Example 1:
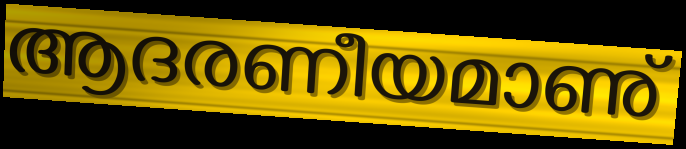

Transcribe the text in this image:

ആദരണീയമാണു്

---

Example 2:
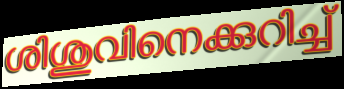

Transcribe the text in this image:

ശിശുവിനെക്കുറിച്ച്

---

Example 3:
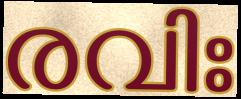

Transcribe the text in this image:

രവിഃ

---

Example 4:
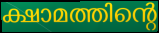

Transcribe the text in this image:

ക്ഷാമത്തിന്റെ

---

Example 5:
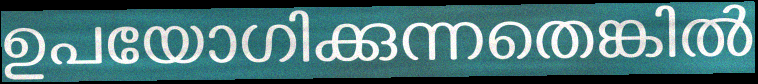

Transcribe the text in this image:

ഉപയോഗിക്കുന്നതെങ്കിൽ